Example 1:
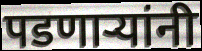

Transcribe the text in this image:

पडणाऱ्यांनी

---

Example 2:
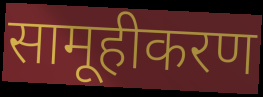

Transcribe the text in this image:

सामूहीकरण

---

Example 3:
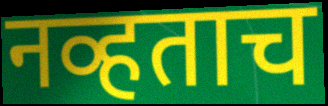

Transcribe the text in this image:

नव्हताच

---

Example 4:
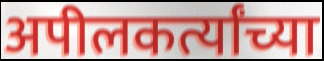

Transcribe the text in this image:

अपीलकर्त्यांच्या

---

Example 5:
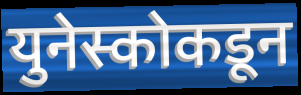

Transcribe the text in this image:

युनेस्कोकडून